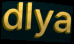
dlya